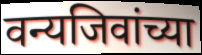
वन्यजिवांच्या